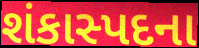
શંકાસ્પદના